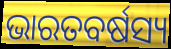
ଭାରତବର୍ଷସ୍ୟ